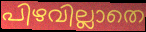
പിഴവില്ലാതെ